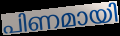
പിണമായി